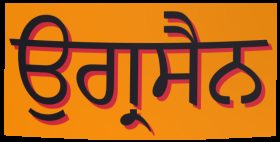
ਉਗ੍ਰਸੈਨ